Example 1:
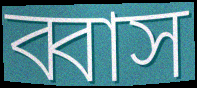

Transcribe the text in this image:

ব্বাস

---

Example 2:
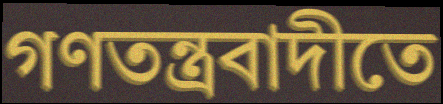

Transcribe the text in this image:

গণতন্ত্রবাদীতে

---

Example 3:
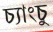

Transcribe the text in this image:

চ্যাংচু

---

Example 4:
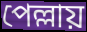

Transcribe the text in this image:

পেল্লায়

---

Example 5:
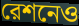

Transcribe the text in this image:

রেশনেও